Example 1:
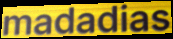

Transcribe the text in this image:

madadias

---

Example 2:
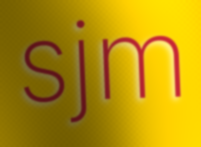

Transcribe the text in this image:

sjm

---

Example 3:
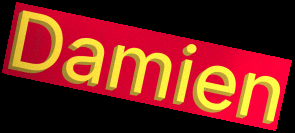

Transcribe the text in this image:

Damien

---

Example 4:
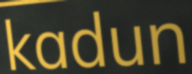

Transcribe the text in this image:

kadun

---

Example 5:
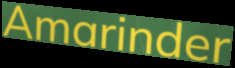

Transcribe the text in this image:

Amarinder